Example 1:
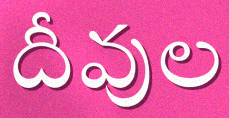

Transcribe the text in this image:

దీవుల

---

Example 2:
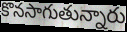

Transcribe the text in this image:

కొనసాగుతున్నారు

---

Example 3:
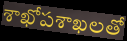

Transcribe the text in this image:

శాఖోపశాఖలతో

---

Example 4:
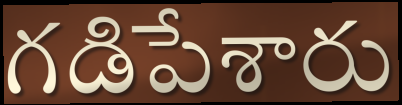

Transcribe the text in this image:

గడిపేశారు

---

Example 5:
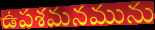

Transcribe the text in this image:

ఉపశమనమును